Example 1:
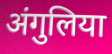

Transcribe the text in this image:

अंगुलिया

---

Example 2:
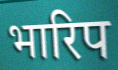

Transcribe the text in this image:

भारिप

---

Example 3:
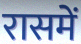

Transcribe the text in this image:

रासमें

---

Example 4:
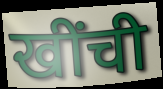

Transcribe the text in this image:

खींची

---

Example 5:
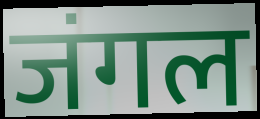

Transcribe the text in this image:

जंगल